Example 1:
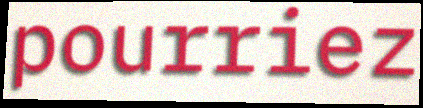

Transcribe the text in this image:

pourriez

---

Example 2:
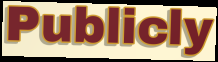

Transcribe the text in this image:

Publicly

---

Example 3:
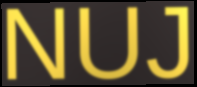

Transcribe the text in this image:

NUJ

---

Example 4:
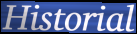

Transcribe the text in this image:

Historial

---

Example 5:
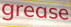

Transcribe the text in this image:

grease